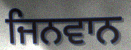
ਜਿਨਵਾਨ